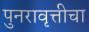
पुनरावृत्तीचा